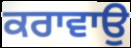
ਕਰਾਵਾਉ